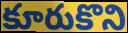
కూరుకొని